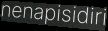
nenapisidiri